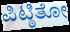
ಪಿಟ್ಠಿತೋ